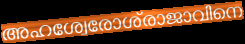
അഹശ്വേരോശ്‌രാജാവിനെ